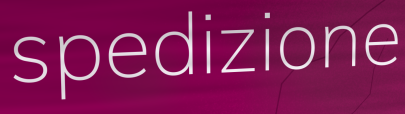
spedizione